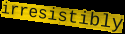
irresistibly